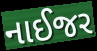
નાઈજર